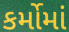
કર્મોમાં